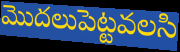
మొదలుపెట్టవలసి